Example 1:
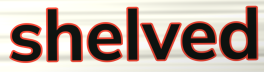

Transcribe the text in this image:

shelved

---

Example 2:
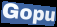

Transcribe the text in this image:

Gopu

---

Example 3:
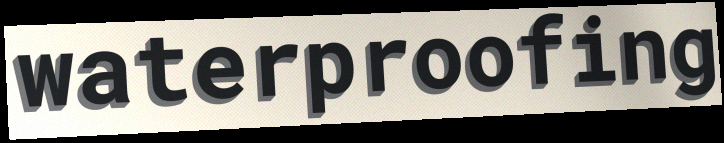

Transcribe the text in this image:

waterproofing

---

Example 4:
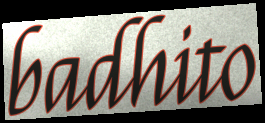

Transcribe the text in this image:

badhito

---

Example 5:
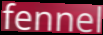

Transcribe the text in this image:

fennel